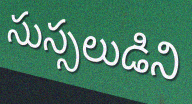
సుస్సలుడిని